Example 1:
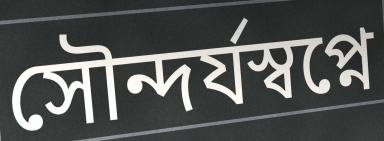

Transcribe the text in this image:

সৌন্দর্যস্বপ্নে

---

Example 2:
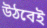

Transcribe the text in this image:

উঠবেই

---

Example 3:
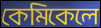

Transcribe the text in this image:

কেমিকেলে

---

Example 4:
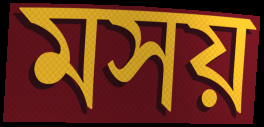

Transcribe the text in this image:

মসয়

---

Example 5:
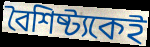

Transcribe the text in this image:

বৈশিষ্ট্যকেই